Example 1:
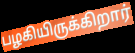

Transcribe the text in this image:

பழகியிருக்கிறார்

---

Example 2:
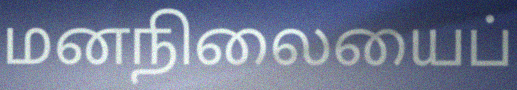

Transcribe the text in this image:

மனநிலையைப்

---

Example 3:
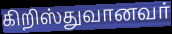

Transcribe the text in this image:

கிறிஸ்துவானவர்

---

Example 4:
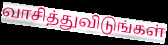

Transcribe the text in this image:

வாசித்துவிடுங்கள்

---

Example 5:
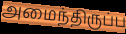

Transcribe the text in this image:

அமைந்திருப்ப